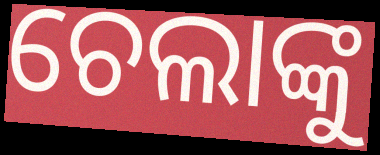
ଚେଲାଙ୍କୁ